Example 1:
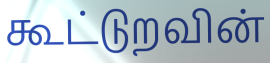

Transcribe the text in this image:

கூட்டுறவின்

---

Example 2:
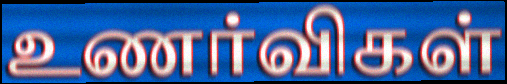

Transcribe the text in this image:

உணர்விகள்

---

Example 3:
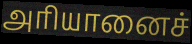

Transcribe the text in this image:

அரியானைச்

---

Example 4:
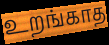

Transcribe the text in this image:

உறங்காத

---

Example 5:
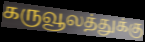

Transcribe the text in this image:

கருவூலத்துக்கு